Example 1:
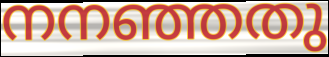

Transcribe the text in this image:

നനഞ്ഞതു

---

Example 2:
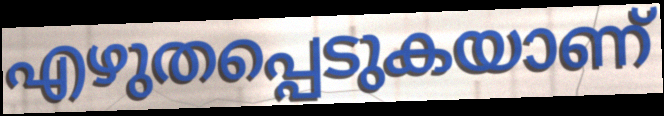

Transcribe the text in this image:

എഴുതപ്പെടുകയാണ്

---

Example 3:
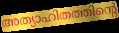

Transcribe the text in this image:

അത്യാഹിതത്തിന്റെ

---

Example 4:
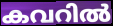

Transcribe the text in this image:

കവറിൽ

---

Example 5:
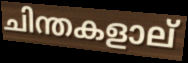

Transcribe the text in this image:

ചിന്തകളാല്